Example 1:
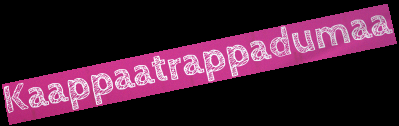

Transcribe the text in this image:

Kaappaatrappadumaa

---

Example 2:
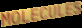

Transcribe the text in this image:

MOLECULES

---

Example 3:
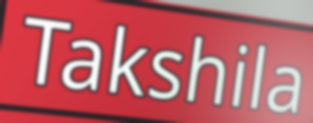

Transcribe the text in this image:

Takshila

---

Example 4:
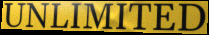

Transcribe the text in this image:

UNLIMITED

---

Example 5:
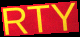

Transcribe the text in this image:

RTY